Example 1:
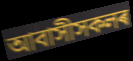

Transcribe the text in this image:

আবাসীসকলৰ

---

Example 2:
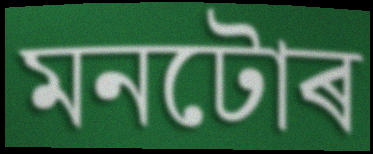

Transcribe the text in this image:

মনটোৰ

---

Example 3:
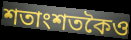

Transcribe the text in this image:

শতাংশতকৈও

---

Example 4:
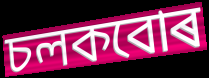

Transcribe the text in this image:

চলকবোৰ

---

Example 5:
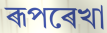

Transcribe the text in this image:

ৰূপৰেখা